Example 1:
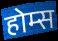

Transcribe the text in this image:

होम्स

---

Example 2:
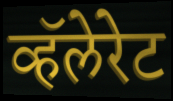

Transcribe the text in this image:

व्हॅलेरेट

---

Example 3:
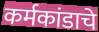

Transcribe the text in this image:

कर्मकांडाचे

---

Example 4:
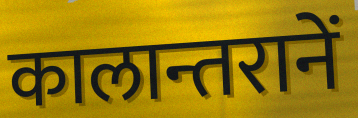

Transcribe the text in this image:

कालान्तरानें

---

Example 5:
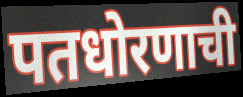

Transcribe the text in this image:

पतधोरणाची